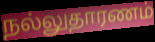
நல்லுதாரணம்